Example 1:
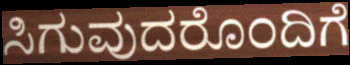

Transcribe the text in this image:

ಸಿಗುವುದರೊಂದಿಗೆ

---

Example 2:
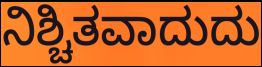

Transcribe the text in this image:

ನಿಶ್ಚಿತವಾದುದು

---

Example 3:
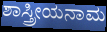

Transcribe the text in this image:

ಶಾಸ್ತ್ರೀಯನಾಮ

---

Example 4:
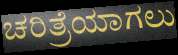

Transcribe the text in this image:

ಚರಿತ್ರೆಯಾಗಲು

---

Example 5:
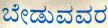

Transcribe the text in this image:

ಬೇಡುವವರ